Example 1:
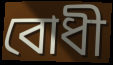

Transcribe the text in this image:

বোধী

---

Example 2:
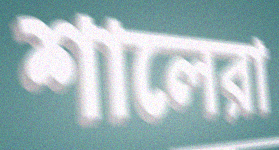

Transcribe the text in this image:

শালেরা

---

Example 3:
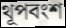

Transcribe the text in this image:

থূপবংশ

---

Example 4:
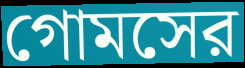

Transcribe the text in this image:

গোমসের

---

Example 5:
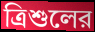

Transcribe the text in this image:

ত্রিশুলের